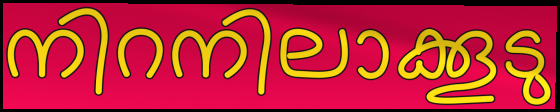
നിറനിലാക്കൂടു